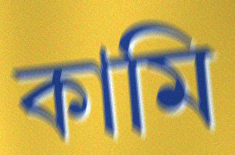
কামি